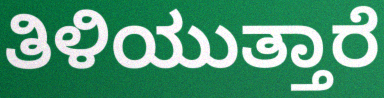
ತಿಳಿಯುತ್ತಾರೆ